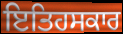
ਇਤਿਹਸਕਾਰ